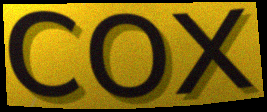
cox